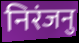
निरंजनु